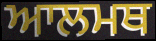
ਆਲਮਥ